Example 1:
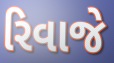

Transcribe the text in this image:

રિવાજે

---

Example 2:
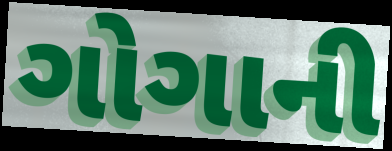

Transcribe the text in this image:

ગોગાની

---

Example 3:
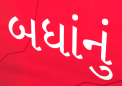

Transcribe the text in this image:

બધાંનું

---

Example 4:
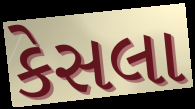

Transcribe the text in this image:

કેસલા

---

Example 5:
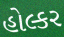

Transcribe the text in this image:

હોલ્કર